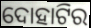
ଦୋହାଟିର